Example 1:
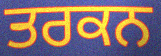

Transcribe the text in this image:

ਤਰਕਨ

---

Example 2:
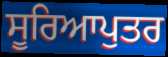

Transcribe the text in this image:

ਸੂਰਿਆਪੁਤਰ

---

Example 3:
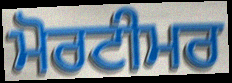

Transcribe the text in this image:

ਮੋਰਟੀਮਰ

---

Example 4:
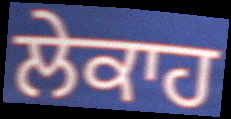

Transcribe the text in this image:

ਲੇਕਾਹ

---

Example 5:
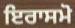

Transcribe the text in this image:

ਇਰਾਸਮੋ